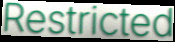
Restricted